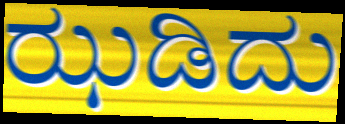
ಝಡಿದು